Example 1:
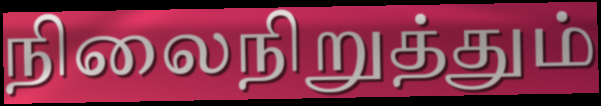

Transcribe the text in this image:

நிலைநிறுத்தும்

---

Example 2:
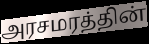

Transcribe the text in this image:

அரசமரத்தின்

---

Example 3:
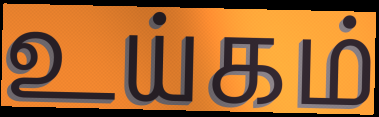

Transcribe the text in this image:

உய்கம்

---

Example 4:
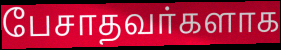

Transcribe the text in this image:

பேசாதவர்களாக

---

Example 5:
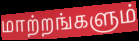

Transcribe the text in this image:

மாற்றங்களும்